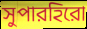
সুপারহিরো